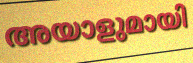
അയാളുമായി